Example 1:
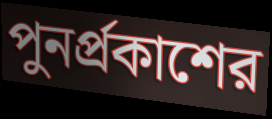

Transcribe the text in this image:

পুনর্প্রকাশের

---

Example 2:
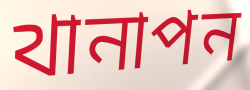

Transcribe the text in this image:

থানাপন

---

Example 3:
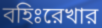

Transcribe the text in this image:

বহিঃরেখার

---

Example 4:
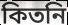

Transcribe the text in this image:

কিতনি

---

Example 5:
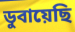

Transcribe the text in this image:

ডুবায়েছি